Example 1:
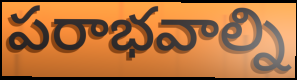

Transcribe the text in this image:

పరాభవాల్ని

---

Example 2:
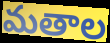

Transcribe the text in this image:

మతాల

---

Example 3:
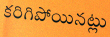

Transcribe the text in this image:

కరిగిపోయినట్లు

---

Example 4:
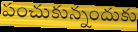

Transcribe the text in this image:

పంచుకున్నందుకు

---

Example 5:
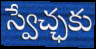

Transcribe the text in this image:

స్వేచ్ఛకు